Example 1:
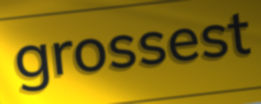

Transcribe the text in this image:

grossest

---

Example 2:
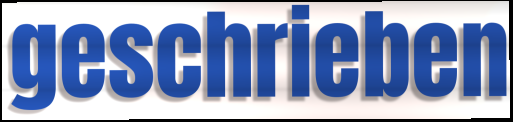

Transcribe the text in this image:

geschrieben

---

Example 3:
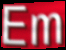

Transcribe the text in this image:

Em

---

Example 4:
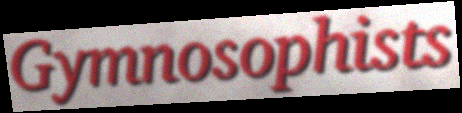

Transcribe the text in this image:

Gymnosophists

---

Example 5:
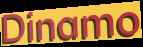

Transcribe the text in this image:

Dinamo